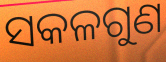
ସକଳଗୁଣ